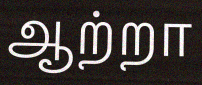
ஆற்றா